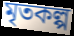
মৃতকল্প